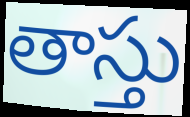
తాస్తు